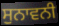
ਸੁਨਾਵਨੀ